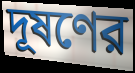
দূষণের